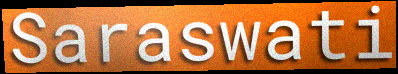
Saraswati